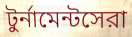
টুর্নামেন্টসেরা